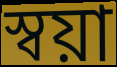
স্বয়া